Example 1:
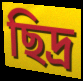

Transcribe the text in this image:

ছিদ্ৰ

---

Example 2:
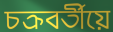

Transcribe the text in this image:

চক্ৰবৰ্তীয়ে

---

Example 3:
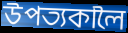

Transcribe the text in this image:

উপত্যকালৈ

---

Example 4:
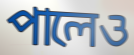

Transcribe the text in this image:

পালেও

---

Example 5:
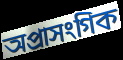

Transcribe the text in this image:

অপ্ৰাসংগিক